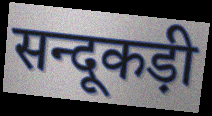
सन्दूकड़ी